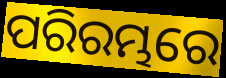
ପରିରମ୍ଭରେ